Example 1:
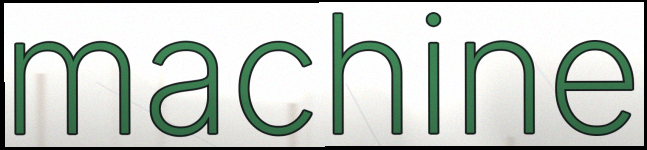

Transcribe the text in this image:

machine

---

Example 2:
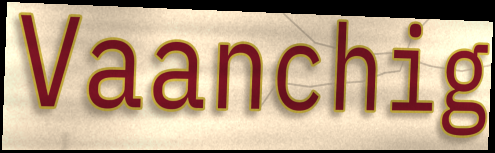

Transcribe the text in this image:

Vaanchig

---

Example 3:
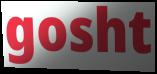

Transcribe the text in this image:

gosht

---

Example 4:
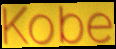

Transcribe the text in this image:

Kobe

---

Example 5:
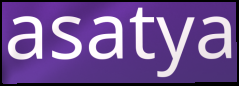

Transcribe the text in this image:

asatya